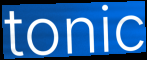
tonic